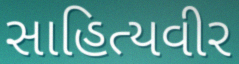
સાહિત્યવીર